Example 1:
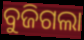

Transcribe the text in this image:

ବୁଜିଗଲା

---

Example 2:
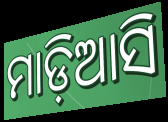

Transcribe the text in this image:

ମାଡ଼ିଆସି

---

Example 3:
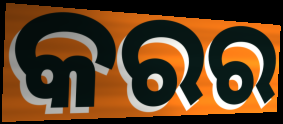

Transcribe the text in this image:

କରର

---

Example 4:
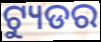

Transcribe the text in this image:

ଟ୍ୟୁଡର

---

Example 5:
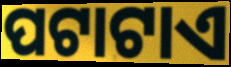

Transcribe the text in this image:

ପଟାଟାଏ